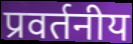
प्रवर्तनीय